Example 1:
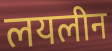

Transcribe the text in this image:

लयलीन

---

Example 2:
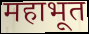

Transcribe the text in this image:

महाभूत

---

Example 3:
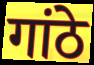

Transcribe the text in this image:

गांठे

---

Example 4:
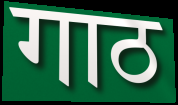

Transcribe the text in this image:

गाठ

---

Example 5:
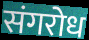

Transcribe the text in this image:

संगरोध